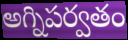
అగ్నిపర్వతం